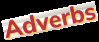
Adverbs